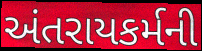
અંતરાયકર્મની